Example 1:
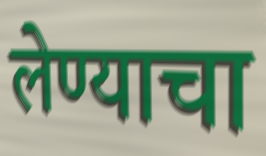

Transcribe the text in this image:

लेण्याचा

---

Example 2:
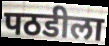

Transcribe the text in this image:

पठडीला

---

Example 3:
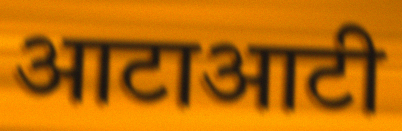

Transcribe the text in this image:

आटाआटी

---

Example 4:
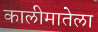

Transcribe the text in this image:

कालीमातेला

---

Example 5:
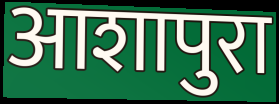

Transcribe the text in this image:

आशापुरा